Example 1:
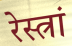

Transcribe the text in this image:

रेस्त्रां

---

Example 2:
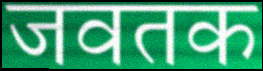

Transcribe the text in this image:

जवतक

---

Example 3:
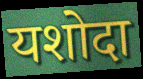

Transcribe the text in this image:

यशोदा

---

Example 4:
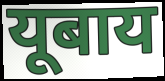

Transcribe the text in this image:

यूबाय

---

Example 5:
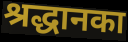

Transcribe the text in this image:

श्रद्धानका